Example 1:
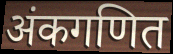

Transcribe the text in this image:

अंकगणित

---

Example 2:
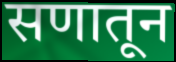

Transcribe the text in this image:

सणातून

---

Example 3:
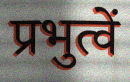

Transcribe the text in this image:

प्रभुत्वें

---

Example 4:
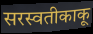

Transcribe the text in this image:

सरस्वतीकाकू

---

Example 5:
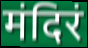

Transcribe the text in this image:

मंदिरं